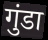
गुंडा